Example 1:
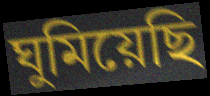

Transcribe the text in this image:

ঘুমিয়েছি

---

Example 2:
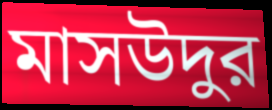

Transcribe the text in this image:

মাসউদুর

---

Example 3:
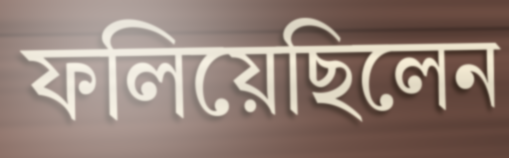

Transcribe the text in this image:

ফলিয়েছিলেন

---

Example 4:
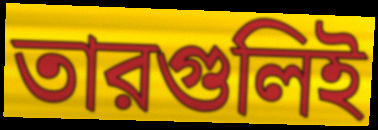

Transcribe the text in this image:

তারগুলিই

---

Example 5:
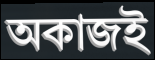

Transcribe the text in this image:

অকাজই